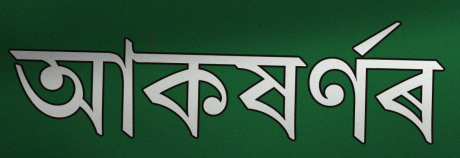
আকষৰ্ণৰ